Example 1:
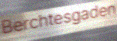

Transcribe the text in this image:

Berchtesgaden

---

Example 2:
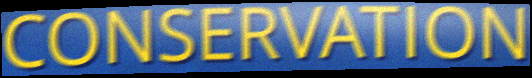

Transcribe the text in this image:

CONSERVATION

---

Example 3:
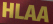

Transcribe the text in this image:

HLAA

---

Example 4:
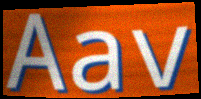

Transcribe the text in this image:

Aav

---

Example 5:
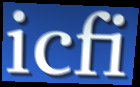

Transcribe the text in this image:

icfi